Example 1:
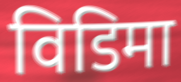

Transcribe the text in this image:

विडिमा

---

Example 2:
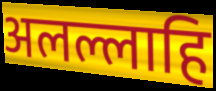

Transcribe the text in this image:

अलल्लाहि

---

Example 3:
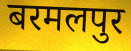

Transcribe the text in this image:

बरमलपुर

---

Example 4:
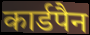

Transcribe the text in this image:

कार्डपैन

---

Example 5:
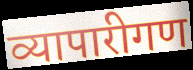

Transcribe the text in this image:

व्यापारीगण